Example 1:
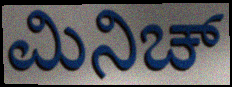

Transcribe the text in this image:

ಮಿನಿಚ್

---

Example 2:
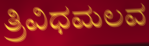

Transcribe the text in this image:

ತ್ರಿವಿಧಮಲವ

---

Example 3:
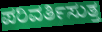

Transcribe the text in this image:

ಪರಿವರ್ತಿಸುತ್ತ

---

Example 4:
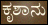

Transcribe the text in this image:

ಕೃಶಾನು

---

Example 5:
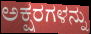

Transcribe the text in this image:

ಅಕ್ಷರಗಳನ್ನು